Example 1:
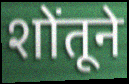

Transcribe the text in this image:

शोंतूने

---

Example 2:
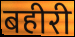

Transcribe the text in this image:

बहीरी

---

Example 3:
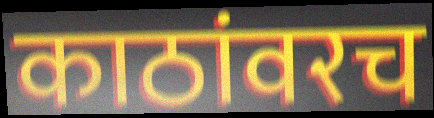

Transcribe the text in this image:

काठांवरच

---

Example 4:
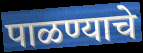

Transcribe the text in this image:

पाळण्याचे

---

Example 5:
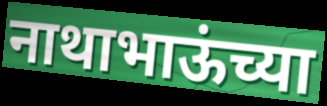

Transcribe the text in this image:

नाथाभाऊंच्या